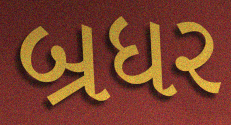
બ્રધર